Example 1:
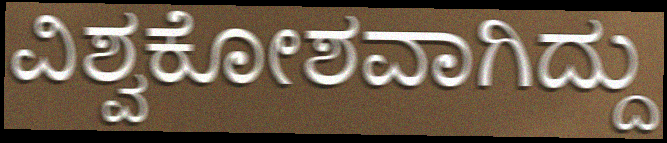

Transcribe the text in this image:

ವಿಶ್ವಕೋಶವಾಗಿದ್ದು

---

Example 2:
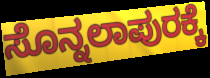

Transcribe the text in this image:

ಸೊನ್ನಲಾಪುರಕ್ಕೆ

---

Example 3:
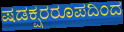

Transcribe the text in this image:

ಷಡಕ್ಷರರೂಪದಿಂದ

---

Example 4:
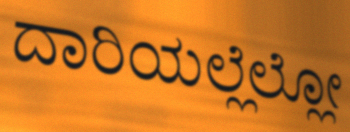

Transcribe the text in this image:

ದಾರಿಯಲ್ಲೆಲ್ಲೋ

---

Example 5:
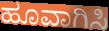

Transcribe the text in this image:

ಹೂವಾಗಿಸಿ